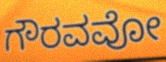
ಗೌರವವೋ